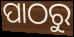
ପାଠରୁ